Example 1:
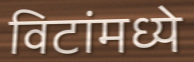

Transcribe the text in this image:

विटांमध्ये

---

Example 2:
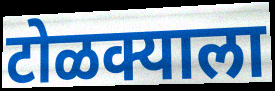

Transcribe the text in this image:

टोळक्याला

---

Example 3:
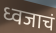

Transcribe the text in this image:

ध्वजाचं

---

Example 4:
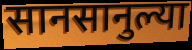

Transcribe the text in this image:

सानसानुल्या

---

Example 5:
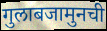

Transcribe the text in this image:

गुलाबजामुनची